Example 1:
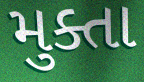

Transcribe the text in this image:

મુક્તા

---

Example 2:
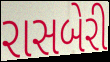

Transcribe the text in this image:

રાસબેરી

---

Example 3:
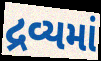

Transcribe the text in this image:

દ્રવ્યમાં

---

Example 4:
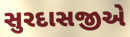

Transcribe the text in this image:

સુરદાસજીએ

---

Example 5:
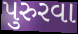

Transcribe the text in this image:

પુરુરવા